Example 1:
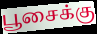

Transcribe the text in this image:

பூசைக்கு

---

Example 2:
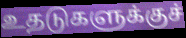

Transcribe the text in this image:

உதடுகளுக்குச்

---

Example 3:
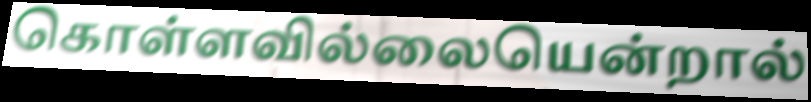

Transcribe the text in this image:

கொள்ளவில்லையென்றால்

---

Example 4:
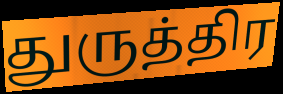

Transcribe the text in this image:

துருத்திர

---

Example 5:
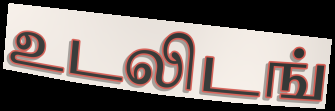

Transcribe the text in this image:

உடலிடங்